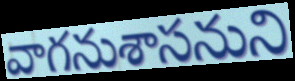
వాగనుశాసనుని